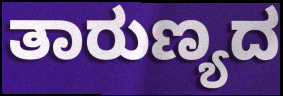
ತಾರುಣ್ಯದ